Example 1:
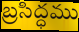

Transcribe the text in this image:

బ్రసిద్ధము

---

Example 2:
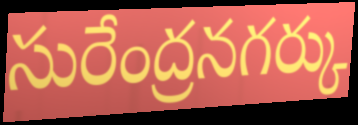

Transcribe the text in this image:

సురేంద్రనగర్కు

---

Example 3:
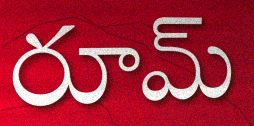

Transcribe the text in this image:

రూమ్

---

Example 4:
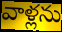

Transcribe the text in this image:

వాళ్లను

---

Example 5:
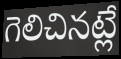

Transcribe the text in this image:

గెలిచినట్లే